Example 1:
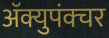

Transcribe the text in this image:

ॲक्युपंक्चर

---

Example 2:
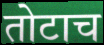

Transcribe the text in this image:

तोटाच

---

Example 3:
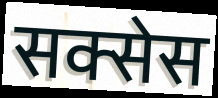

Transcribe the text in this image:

सक्सेस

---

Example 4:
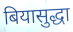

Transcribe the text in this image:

बियासुद्धा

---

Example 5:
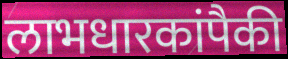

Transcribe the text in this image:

लाभधारकांपैकी